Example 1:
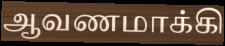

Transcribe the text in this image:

ஆவணமாக்கி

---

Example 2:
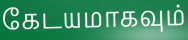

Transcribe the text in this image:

கேடயமாகவும்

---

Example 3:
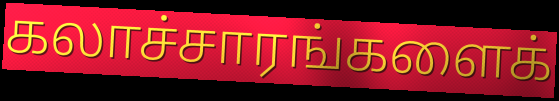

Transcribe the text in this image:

கலாச்சாரங்களைக்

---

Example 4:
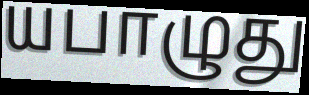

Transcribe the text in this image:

யபாழுது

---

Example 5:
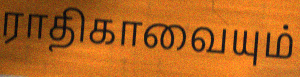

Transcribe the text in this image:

ராதிகாவையும்